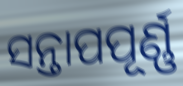
ସନ୍ତାପପୂର୍ଣ୍ଣ